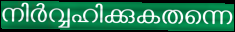
നിർവ്വഹിക്കുകതന്നെ